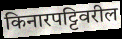
किनारपट्टिवरील